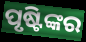
ପୃଷ୍ଟିଙ୍କର